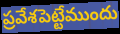
ప్రవేశపెట్టేముందు